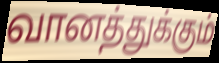
வானத்துக்கும்